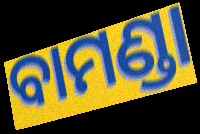
ବାମଣ୍ଡା